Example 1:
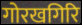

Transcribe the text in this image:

गोरखगिरि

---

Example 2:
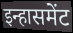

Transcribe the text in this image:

इन्हासमेंट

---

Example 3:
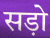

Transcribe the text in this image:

सड़ो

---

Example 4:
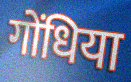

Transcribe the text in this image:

गोंधिया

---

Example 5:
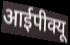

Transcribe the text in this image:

आईपीक्यू